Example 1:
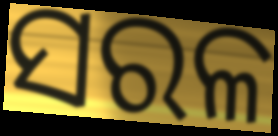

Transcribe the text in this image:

ସରଳ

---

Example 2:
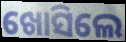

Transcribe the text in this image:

ଖୋସିଲେ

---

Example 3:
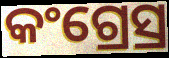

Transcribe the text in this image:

କଂଗ୍ରେସ୍ର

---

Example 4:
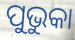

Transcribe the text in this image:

ପୁଭୁକା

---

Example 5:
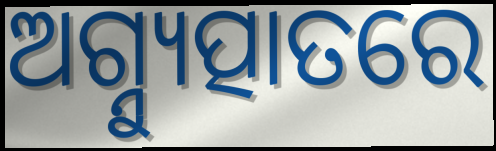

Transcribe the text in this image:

ଅଗ୍ନ୍ୟୁତ୍ପାତରେ